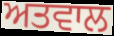
ਅਤਵਾਲ